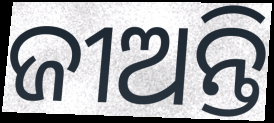
ଜୀଅନ୍ତି